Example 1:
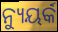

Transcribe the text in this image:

ନ୍ୟୁୟର୍କ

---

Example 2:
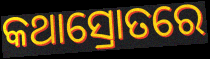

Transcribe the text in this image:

କଥାସ୍ରୋତରେ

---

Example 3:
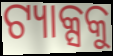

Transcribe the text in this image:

ଟ୍ୟାକ୍ସକୁ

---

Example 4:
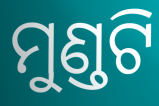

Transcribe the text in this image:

ମୁଣ୍ଡଟି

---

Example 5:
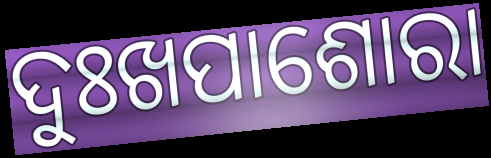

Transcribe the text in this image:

ଦୁଃଖପାଶୋରା